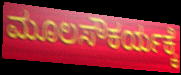
ಮೂಲಸೌಕರ್ಯಕ್ಕೆ